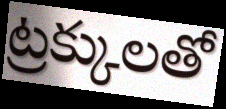
ట్రక్కులతో